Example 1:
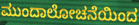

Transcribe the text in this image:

ಮುಂದಾಲೋಚನೆಯಿಂದ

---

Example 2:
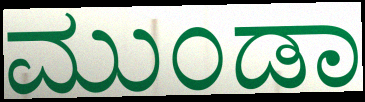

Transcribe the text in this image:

ಮುಂಡಾ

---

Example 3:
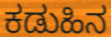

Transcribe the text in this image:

ಕಡುಹಿನ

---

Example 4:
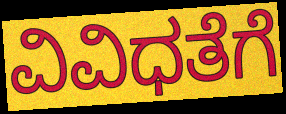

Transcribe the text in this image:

ವಿವಿಧತೆಗೆ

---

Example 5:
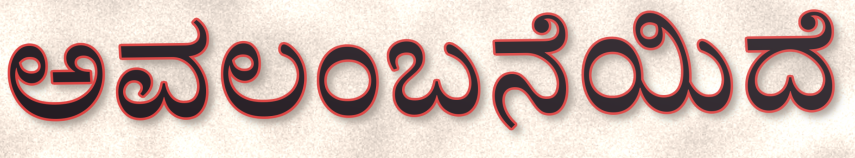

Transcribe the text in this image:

ಅವಲಂಬನೆಯಿದೆ